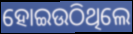
ହୋଇଉଠିଥିଲେ